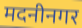
मदनीनगर